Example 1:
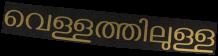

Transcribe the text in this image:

വെള്ളത്തിലുള്ള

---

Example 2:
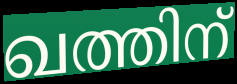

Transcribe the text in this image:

ഖത്തിന്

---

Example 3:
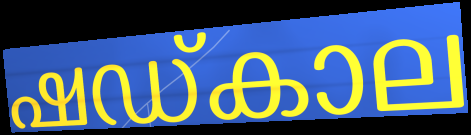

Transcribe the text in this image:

ഷഡ്കാല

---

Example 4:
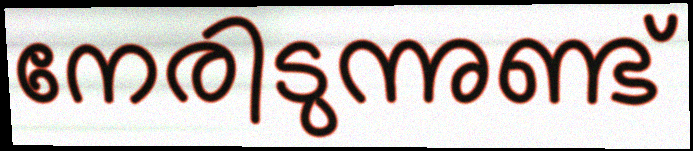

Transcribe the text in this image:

നേരിടുന്നുണ്ട്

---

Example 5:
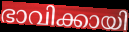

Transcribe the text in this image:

ഭാവിക്കായി